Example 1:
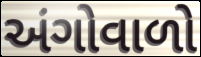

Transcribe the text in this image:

અંગોવાળો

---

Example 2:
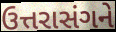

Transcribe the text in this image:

ઉત્તરાસંગને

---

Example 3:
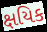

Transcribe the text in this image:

ક્ષયિક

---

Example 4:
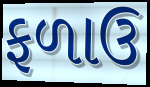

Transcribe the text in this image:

ફળાઉ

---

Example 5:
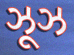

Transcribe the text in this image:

ઝૂઝ